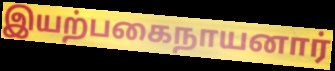
இயற்பகைநாயனார்